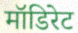
मॉडिरेट